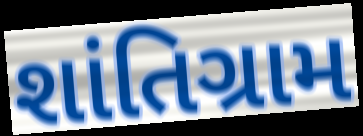
શાંતિગ્રામ